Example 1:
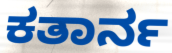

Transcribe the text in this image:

ಕತಾರ್ನ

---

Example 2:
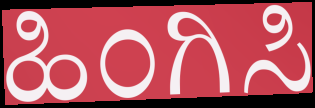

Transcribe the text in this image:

ಹಿಂಗಿಸಿ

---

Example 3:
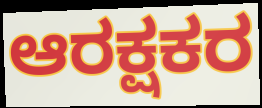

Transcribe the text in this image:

ಆರಕ್ಷಕರ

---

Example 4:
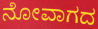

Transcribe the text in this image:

ನೋವಾಗದ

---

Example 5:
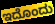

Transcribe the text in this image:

ಇದೊಂದು